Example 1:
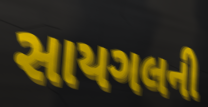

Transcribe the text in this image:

સાયગલની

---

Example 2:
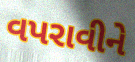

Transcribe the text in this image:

વપરાવીને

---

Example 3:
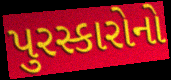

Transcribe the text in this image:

પુરસ્કારોનો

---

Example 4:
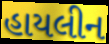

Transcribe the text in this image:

હાયલીન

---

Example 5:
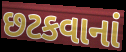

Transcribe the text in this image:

છટકવાનાં